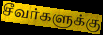
சீவர்களுக்கு